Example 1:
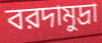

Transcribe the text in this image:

বরদামুদ্রা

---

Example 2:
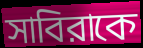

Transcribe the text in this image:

সাবিরাকে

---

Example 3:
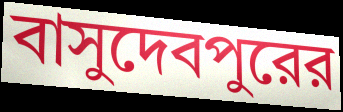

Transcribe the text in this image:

বাসুদেবপুরের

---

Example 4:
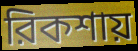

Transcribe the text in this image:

রিকশায়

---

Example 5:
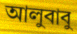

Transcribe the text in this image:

আলুবাবু